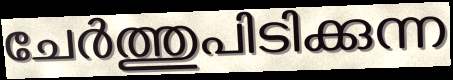
ചേർത്തുപിടിക്കുന്ന